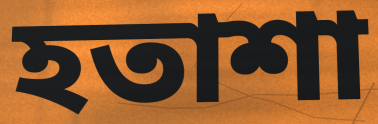
হতাশা